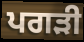
ਪਗੜੀ